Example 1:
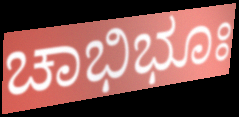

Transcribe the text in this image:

ಚಾಭಿಭೂಃ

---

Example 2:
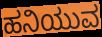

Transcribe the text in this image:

ಹನಿಯುವ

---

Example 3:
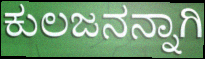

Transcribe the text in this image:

ಕುಲಜನನ್ನಾಗಿ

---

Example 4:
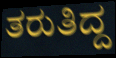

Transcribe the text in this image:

ತರುತಿದ್ದ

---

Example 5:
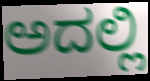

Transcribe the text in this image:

ಅದಲ್ಲಿ